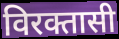
विरक्तासी